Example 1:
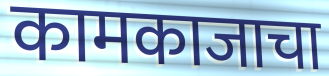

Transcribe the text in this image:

कामकाजाचा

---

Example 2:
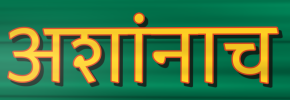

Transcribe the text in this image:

अशांनाच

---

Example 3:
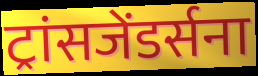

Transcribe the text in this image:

ट्रांसजेंडर्सना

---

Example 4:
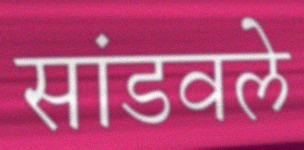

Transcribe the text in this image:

सांडवले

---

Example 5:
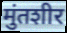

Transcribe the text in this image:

मुंतशीर